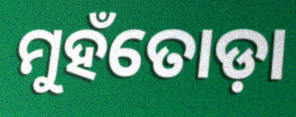
ମୁହଁତୋଡ଼ା